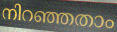
നിറഞ്ഞതാം